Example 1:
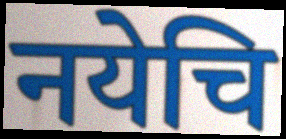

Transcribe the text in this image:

नयेचि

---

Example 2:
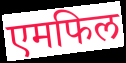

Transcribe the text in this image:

एमफिल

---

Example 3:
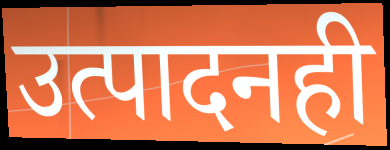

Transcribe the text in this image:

उत्पादनही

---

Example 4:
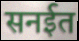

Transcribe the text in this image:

सनईत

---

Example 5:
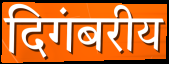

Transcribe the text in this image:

दिगंबरीय